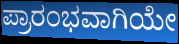
ಪ್ರಾರಂಭವಾಗಿಯೇ